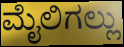
ಮೈಲಿಗಲ್ಲು